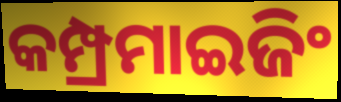
କମ୍ପ୍ରମାଇଜିଂ